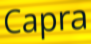
Capra